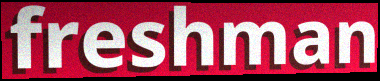
freshman